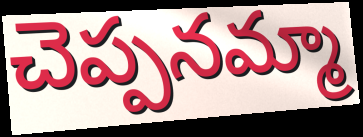
చెప్పనమ్మా